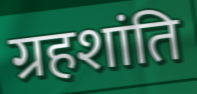
ग्रहशांति